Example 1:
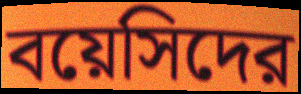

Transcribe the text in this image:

বয়েসিদের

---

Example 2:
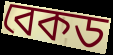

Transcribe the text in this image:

বেকড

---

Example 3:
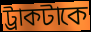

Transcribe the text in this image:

ট্রাকটাকে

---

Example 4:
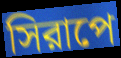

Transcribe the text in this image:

সিরাপে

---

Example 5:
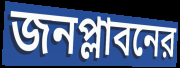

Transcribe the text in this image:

জনপ্লাবনের